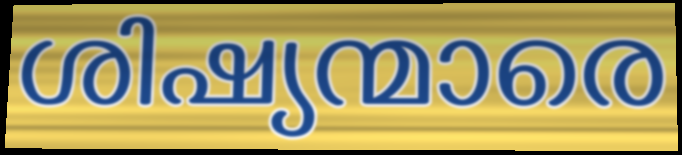
ശിഷ്യന്മാരെ